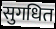
सुगधित